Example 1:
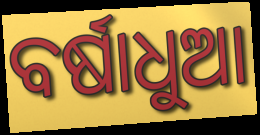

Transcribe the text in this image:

ବର୍ଷାଧୁଆ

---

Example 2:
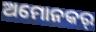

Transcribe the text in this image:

ଅମୋନକର୍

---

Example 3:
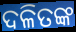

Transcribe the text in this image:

ଦଳିତଙ୍କ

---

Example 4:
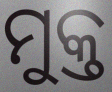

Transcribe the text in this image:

ମୁକ୍ତ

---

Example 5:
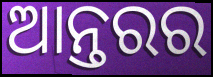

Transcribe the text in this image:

ଆନ୍ତରର